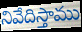
నివేదిస్తాము